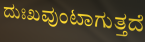
ದುಃಖವುಂಟಾಗುತ್ತದೆ